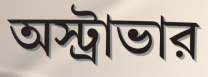
অস্ট্রাভার